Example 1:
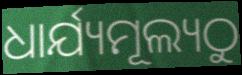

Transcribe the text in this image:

ଧାର୍ଯ୍ୟମୂଲ୍ୟଠୁ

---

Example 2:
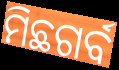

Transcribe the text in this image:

ମିଛଗର୍ବ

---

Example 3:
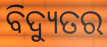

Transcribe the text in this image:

ବିଦ୍ୟୁତର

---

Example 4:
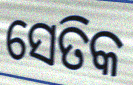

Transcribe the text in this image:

ସେତିକ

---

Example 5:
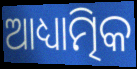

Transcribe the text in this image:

ଆଧ୍ୟାତ୍ମିକ